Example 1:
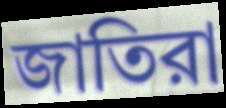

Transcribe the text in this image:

জাতিরা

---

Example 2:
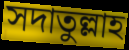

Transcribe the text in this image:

সদাতুল্লাহ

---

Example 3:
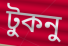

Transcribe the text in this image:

টুকনু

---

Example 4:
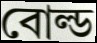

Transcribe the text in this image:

বোল্ড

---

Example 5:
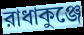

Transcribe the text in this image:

রাধাকুঞ্জে